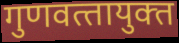
गुणवत्‍तायुक्‍त